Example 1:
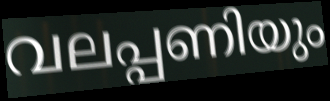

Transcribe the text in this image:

വലപ്പണിയും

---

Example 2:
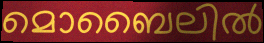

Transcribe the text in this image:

മൊബൈലിൽ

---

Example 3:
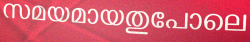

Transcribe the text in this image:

സമയമായതുപോലെ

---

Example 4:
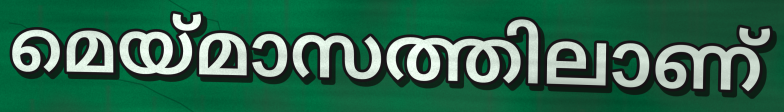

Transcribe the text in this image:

മെയ്മാസത്തിലാണ്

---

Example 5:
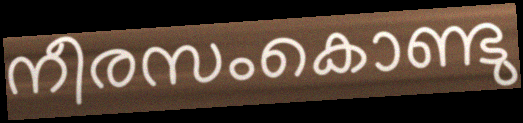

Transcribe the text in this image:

നീരസംകൊണ്ടു